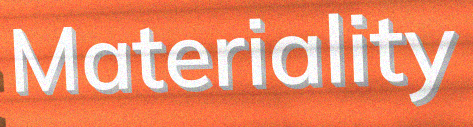
Materiality